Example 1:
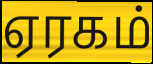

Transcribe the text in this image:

ஏரகம்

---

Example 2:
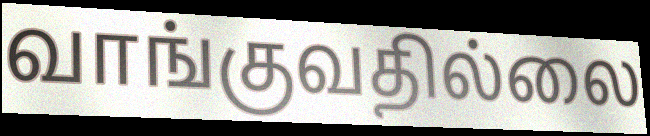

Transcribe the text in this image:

வாங்குவதில்லை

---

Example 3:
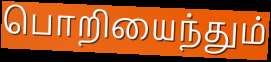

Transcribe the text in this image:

பொறியைந்தும்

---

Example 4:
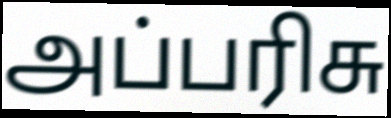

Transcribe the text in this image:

அப்பரிசு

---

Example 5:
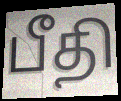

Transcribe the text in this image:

பீதி